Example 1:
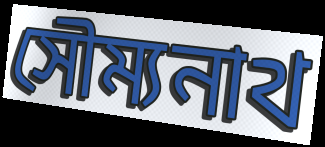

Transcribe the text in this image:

সৌম্যনাথ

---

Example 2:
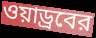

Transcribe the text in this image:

ওয়াড্রবের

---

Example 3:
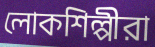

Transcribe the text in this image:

লোকশিল্পীরা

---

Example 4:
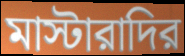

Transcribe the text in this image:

মাস্টারাদির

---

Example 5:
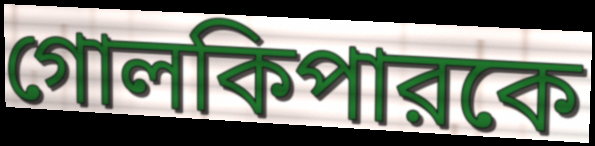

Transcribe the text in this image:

গোলকিপারকে